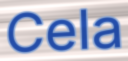
Cela